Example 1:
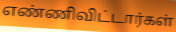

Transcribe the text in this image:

எண்ணிவிட்டார்கள்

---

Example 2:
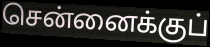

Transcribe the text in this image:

சென்னைக்குப்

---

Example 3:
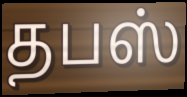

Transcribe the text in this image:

தபஸ்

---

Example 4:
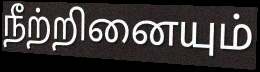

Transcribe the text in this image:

நீற்றினையும்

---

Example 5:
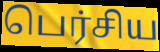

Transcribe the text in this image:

பெர்சிய